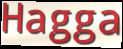
Hagga